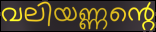
വലിയണ്ണന്റെ